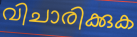
വിചാരിക്കുക